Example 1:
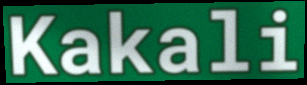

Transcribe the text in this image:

Kakali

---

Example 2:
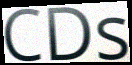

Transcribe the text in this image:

CDs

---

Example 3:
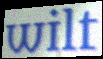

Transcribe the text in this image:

wilt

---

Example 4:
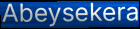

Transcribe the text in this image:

Abeysekera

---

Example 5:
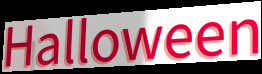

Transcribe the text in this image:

Halloween